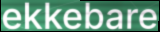
ekkebare